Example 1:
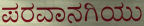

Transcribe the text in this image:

ಪರವಾನಗಿಯು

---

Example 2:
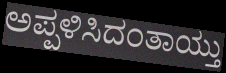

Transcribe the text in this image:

ಅಪ್ಪಳಿಸಿದಂತಾಯ್ತು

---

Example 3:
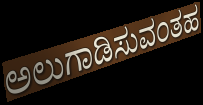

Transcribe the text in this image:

ಅಲುಗಾಡಿಸುವಂತಹ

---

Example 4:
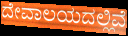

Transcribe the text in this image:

ದೇವಾಲಯದಲ್ಲಿವೆ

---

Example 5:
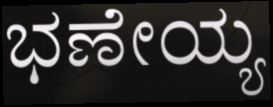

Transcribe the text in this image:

ಭಣೇಯ್ಯ